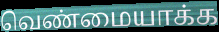
வெண்மையாக்க